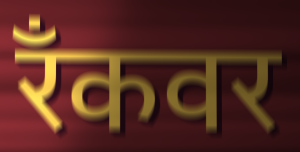
रँकवर